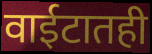
वाईटातही